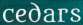
cedars